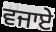
ਵਜਾਏ